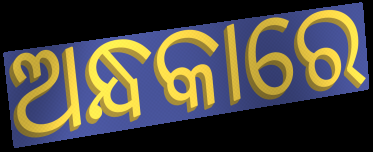
ଅନ୍ଧକାରେ